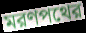
মরণপথের